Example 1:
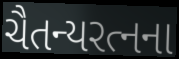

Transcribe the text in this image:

ચૈતન્યરત્નના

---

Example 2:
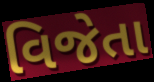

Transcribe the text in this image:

વિજેતા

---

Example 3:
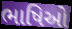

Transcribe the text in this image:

ભાષિઓ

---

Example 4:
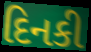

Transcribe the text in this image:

દિનકી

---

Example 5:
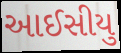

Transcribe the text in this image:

આઈસીયુ